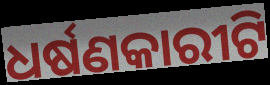
ଧର୍ଷଣକାରୀଟି